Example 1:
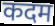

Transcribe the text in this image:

कदम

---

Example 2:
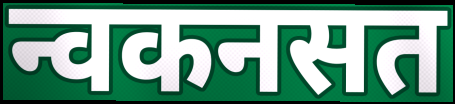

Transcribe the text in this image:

न्वकनसत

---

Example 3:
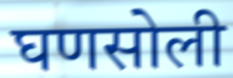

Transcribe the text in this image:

घणसोली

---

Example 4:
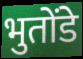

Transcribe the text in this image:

भुतोंडे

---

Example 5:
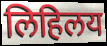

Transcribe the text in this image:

लिहिलय